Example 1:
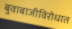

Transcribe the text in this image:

बुवाबाजीविरोधात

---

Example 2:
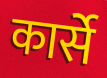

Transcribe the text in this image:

कार्से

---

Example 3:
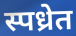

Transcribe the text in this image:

स्पध्रेत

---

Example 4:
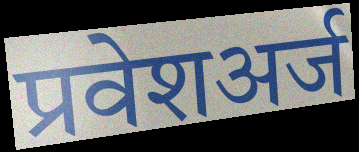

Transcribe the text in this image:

प्रवेशअर्ज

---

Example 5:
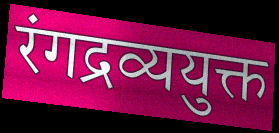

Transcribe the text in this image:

रंगद्रव्ययुक्त